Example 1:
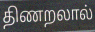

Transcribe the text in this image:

திணறலால்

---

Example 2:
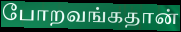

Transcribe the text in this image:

போறவங்கதான்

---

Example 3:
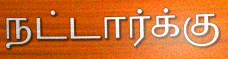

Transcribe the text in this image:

நட்டார்க்கு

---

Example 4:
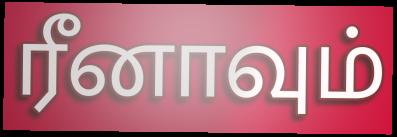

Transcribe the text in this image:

ரீனாவும்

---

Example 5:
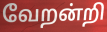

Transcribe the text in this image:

வேறன்றி